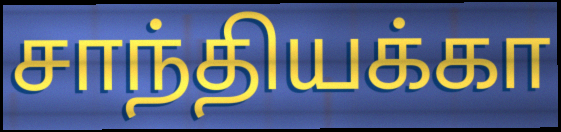
சாந்தியக்கா